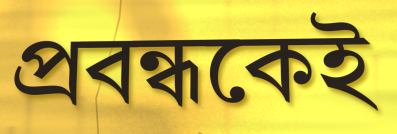
প্রবন্ধকেই